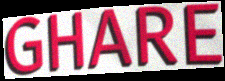
GHARE